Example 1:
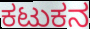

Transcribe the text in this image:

ಕಟುಕನ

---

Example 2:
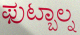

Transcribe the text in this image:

ಫುಟ್ಬಾಲ್ನ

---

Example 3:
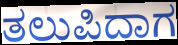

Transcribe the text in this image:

ತಲುಪಿದಾಗ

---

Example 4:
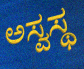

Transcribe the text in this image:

ಅಸ್ವಸ್ಥ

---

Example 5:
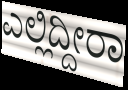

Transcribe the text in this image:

ಎಲ್ಲಿದ್ದೀರಾ